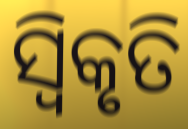
ସ୍ୱିକୃତି